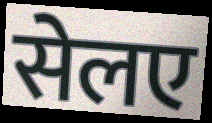
सेलए